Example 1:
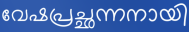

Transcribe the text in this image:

വേഷപ്രച്ഛന്നനായി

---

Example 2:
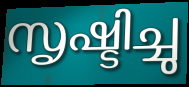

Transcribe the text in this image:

സൃഷ്ടിച്ചു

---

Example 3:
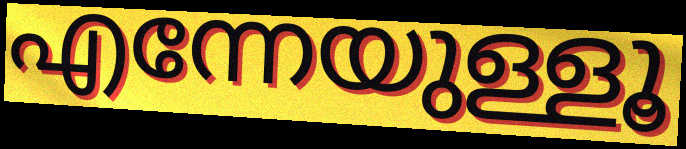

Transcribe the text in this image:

എന്നേയുള്ളൂ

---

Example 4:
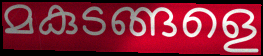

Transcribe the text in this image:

മകുടങ്ങളെ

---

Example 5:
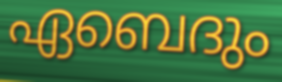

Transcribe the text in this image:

ഏബെദും